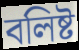
বলিষ্ট